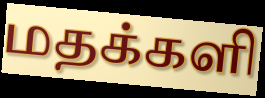
மதக்களி